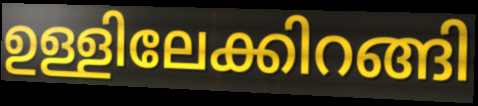
ഉള്ളിലേക്കിറങ്ങി